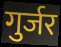
गुर्जर